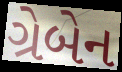
ગ્રેબેન